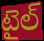
టైల్